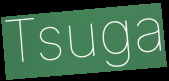
Tsuga